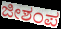
ಜೀಶಂಪ